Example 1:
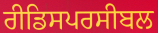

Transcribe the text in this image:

ਰੀਡਿਸਪਰਸੀਬਲ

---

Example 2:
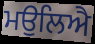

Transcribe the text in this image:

ਮਉਲਿਐ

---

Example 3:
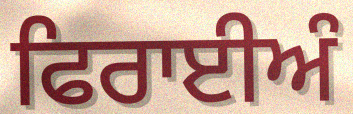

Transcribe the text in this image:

ਫਿਰਾਈਅੰ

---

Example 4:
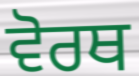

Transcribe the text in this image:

ਵੋਰਥ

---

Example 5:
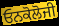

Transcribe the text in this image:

ਓਨਕੋਲੋਜੀ